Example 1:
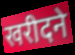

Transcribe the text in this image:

खरीदने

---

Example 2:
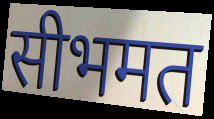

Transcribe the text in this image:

सीभमत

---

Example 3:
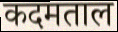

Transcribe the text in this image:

कदमताल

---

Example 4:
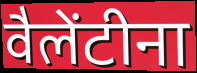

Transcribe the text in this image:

वैलेंटीना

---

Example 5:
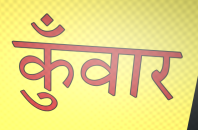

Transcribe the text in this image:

कुँवार